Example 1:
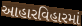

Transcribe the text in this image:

આહારવિહારમાં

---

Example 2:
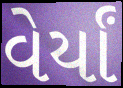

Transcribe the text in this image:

વેર્યાં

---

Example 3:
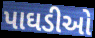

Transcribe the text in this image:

પાઘડીઓ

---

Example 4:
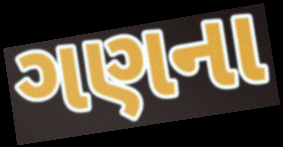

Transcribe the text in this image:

ગણના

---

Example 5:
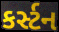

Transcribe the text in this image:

કર્સ્ટન